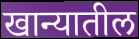
खान्यातील